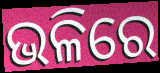
ଭଳିରେ